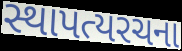
સ્થાપત્યરચના